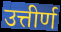
उत्तीर्ण